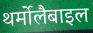
थर्मोलैबाइल